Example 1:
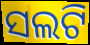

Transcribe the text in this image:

ସଲଟି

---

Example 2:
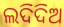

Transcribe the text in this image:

ଲଦିଦିଅ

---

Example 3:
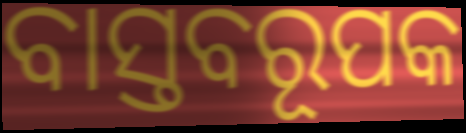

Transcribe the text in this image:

ବାସ୍ତବରୂପକ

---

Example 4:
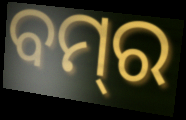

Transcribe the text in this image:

ବମ୍‌ର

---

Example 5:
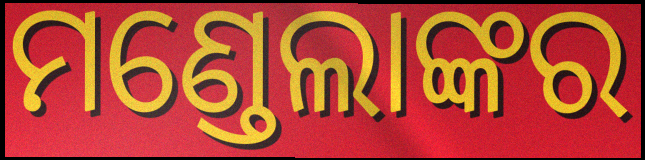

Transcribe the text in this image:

ମଣ୍ଡେଲାଙ୍କର